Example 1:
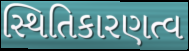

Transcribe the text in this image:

સ્થિતિકારણત્વ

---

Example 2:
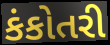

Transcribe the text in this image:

કંકોતરી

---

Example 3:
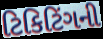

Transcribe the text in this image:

ટિકિટિંગની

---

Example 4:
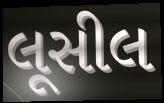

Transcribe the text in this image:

લૂસીલ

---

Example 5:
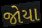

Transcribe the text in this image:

જોયા